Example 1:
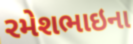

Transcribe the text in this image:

રમેશભાઇના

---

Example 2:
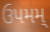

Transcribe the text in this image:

ઉપમમ્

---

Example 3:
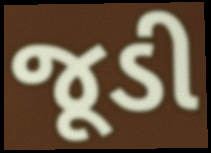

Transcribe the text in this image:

જૂડી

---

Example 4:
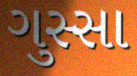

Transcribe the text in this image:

ગુસ્સા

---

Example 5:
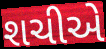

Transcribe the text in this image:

શચીએ